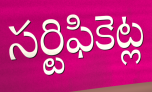
సర్టిఫికెట్ల